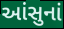
આંસુનાં